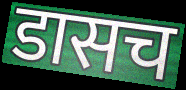
डासच